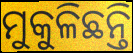
ମୁକୁଳିଛନ୍ତି